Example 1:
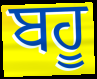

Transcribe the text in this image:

ਬਹੂ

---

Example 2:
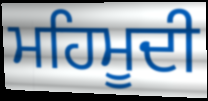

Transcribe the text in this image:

ਮਹਿਮੂਦੀ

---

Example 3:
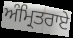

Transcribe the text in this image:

ਅੰਮ੍ਰਿਤਰਾਏ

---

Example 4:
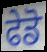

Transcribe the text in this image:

ਫੇਡੋ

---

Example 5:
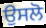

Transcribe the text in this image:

ਉਸਲੋ